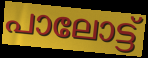
പാലോട്ട്